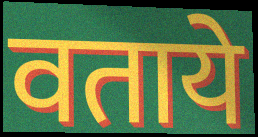
वताये